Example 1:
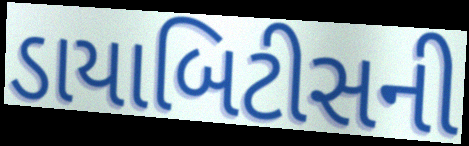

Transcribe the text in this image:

ડાયાબિટીસની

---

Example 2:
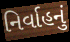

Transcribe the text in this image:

નિર્વાહનું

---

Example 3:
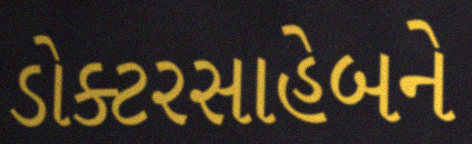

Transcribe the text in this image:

ડોક્ટરસાહેબને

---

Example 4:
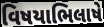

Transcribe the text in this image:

વિષયાભિલાષે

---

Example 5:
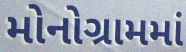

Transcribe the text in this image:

મોનોગ્રામમાં